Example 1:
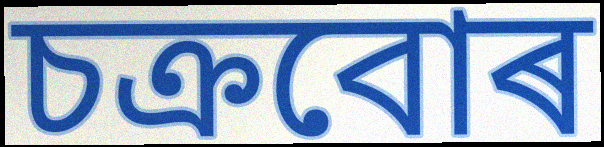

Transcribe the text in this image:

চক্ৰবোৰ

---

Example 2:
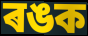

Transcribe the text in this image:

ৰঙক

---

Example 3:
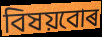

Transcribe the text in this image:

বিষয়বোৰ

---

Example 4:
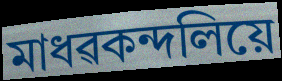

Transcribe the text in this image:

মাধৱকন্দলিয়ে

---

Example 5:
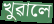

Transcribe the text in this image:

খুৱালে